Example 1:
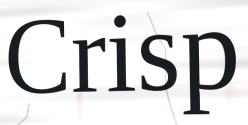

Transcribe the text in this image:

Crisp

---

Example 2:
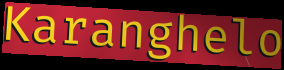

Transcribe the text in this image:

Karanghelo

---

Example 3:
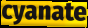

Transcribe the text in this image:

cyanate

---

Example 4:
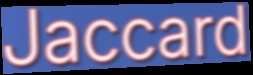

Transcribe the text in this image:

Jaccard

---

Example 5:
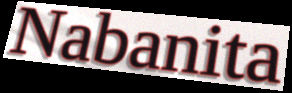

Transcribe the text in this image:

Nabanita